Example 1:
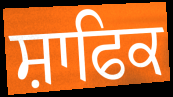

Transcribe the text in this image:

ਸ਼ਾਫਿਕ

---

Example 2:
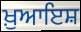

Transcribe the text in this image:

ਖ਼ੁਆਇਸ਼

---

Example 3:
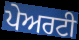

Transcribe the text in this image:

ਪੇਅਰਟੀ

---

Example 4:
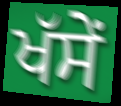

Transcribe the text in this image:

ਖੱਸੇਂ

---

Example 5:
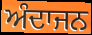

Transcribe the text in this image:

ਅੰਦਾਜਨ